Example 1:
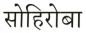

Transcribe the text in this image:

सोहिरोबा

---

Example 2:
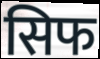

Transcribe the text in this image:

सिफ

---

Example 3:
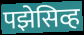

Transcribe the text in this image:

पझेसिव्ह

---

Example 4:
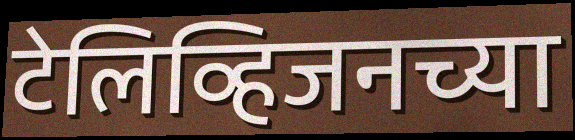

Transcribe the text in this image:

टेलिव्हिजनच्या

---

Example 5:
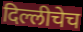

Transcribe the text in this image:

दिल्लीचेच